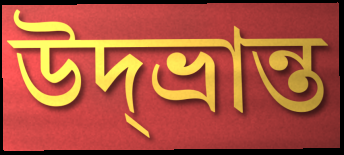
উদ্‌ভ্রান্ত